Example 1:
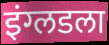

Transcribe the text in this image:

इंग्लडला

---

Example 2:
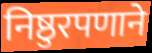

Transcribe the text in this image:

निष्ठुरपणाने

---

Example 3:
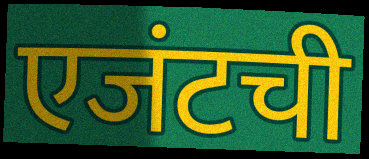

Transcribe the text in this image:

एजंटची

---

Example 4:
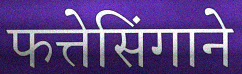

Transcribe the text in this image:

फत्तेसिंगाने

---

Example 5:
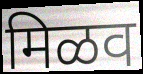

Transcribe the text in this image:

मिळव